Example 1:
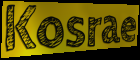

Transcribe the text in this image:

Kosrae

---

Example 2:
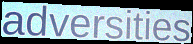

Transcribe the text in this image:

adversities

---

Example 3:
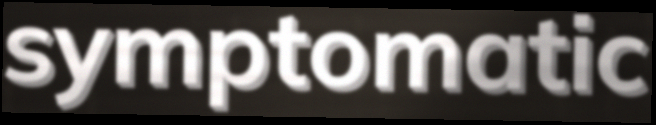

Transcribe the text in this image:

symptomatic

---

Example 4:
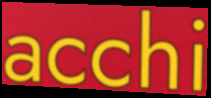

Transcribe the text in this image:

acchi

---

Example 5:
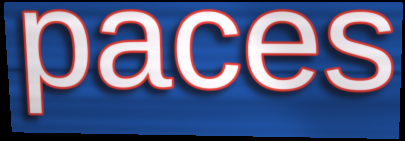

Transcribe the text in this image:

paces